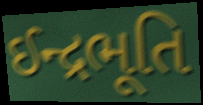
ઈન્દ્રભૂતિ